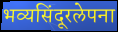
भव्यसिंदूरलेपना